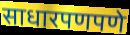
साधारपणपणे